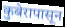
कुबेरापासून